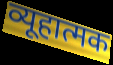
व्यूहात्मक